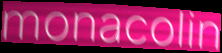
monacolin